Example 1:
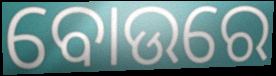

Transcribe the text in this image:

ବୋଉରେ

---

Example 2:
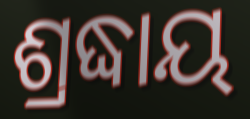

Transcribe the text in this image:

ଶ୍ରଦ୍ଧାୟ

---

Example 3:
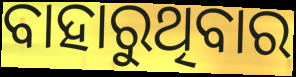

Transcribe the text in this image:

ବାହାରୁଥିବାର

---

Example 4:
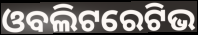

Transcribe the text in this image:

ଓବଲିଟରେଟିଭ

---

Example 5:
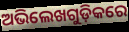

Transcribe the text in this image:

ଅଭିଲେଖଗୁଡ଼ିକରେ